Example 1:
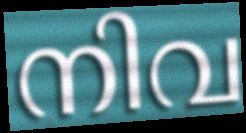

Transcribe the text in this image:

നിവ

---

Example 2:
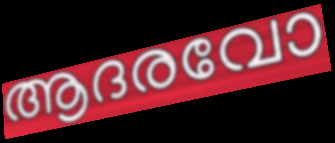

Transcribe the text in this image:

ആദരവോ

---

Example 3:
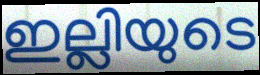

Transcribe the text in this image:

ഇല്ലിയുടെ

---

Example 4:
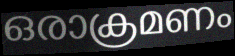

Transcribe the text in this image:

ഒരാക്രമണം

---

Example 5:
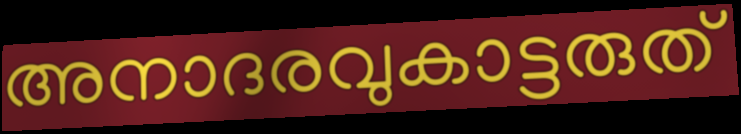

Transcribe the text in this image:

അനാദരവുകാട്ടരുത്